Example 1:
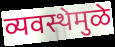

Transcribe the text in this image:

व्यवस्थेमुळे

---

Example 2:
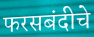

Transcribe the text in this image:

फरसबंदीचे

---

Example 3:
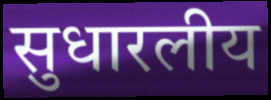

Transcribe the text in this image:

सुधारलीय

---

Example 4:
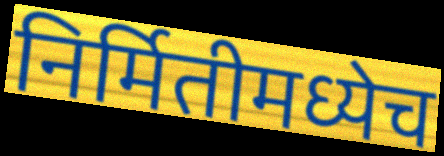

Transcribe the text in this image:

निर्मितीमध्येच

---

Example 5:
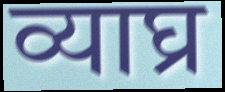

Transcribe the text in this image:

व्याघ्र